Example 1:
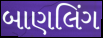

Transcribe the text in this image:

બાણલિંગ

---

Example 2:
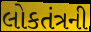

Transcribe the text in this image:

લોકતંત્રની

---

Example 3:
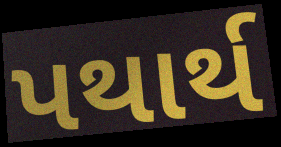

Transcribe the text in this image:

પથાર્થ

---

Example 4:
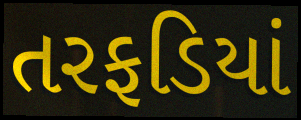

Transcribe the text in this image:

તરફડિયાં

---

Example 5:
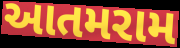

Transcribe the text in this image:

આતમરામ